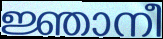
ജ്ഞാനീ